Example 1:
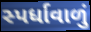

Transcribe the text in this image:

સ્પર્ધાવાળું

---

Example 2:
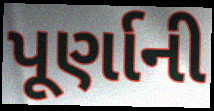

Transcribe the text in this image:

પૂર્ણાની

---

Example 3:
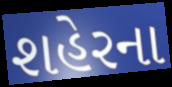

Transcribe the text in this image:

શહેરના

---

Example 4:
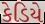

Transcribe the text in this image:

કેડિયે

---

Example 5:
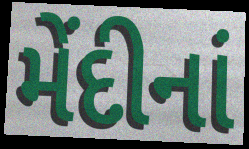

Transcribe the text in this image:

મેંદીનાં